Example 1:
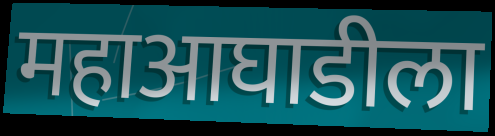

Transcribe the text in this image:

महाआघाडीला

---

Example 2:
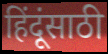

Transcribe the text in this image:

हिंदूंसाठी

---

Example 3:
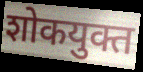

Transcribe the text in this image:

शोकयुक्त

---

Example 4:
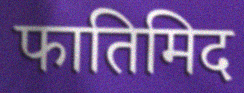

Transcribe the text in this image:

फातिमिद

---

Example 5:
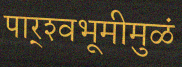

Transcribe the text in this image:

पार्श्वभूमीमुळं